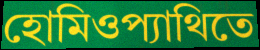
হোমিওপ্যাথিতে